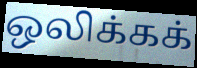
ஒலிக்கக்